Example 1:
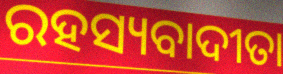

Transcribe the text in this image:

ରହସ୍ୟବାଦୀତା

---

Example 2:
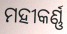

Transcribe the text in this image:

ମହୀକର୍ଣ୍ଣ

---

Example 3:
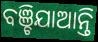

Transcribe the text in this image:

ବଞ୍ଚିଯାଆନ୍ତି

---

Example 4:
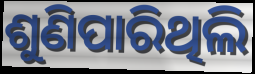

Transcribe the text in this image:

ଶୁଣିପାରିଥିଲି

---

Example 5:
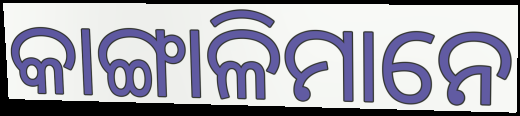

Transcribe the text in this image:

କାଙ୍ଗାଳିମାନେ